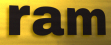
ram